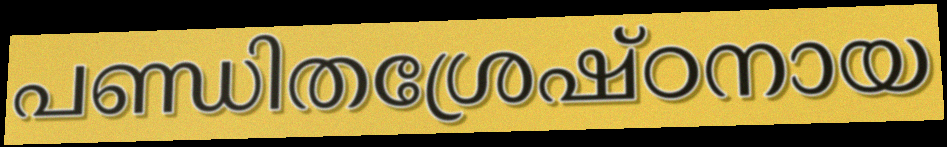
പണ്ഡിതശ്രേഷ്ഠനായ